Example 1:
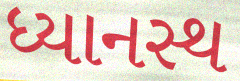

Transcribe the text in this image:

ધ્યાનસ્થ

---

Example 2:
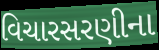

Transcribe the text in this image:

વિચારસરણીના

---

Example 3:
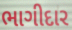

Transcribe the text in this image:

ભાગીદાર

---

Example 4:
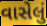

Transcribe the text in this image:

વાસેલું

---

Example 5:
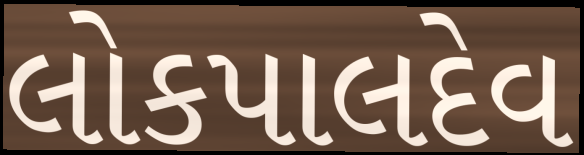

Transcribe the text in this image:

લોકપાલદેવ